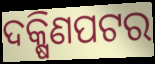
ଦକ୍ଷିଣପଟର